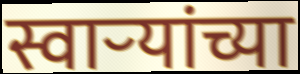
स्वाऱ्यांच्या